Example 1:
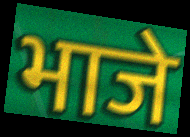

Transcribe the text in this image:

भाजे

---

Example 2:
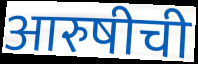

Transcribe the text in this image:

आरुषीची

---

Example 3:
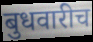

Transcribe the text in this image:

बुधवारीच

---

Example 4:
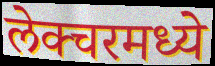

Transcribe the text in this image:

लेक्चरमध्ये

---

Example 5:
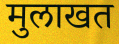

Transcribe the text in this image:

मुलाखत